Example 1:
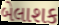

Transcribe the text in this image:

બેલાશક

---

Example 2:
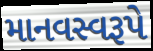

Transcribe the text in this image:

માનવસ્વરૂપે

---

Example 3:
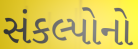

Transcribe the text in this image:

સંકલ્પોનો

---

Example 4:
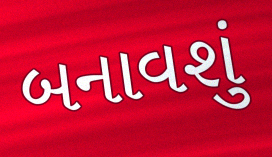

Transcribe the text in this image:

બનાવશું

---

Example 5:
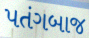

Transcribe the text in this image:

પતંગબાજ